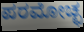
ಪರಮೋಚ್ಛ